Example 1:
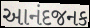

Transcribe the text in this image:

આનંદજનક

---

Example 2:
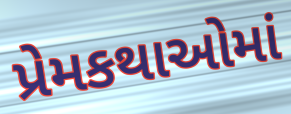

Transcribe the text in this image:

પ્રેમકથાઓમાં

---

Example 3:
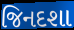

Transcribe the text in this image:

જિનદશા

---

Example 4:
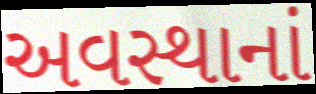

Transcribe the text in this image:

અવસ્થાનાં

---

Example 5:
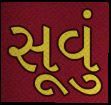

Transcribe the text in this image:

સૂવું